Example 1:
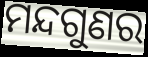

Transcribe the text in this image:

ମନ୍ଦଗୁଣର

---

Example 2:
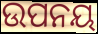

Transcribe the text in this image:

ଉପନୟ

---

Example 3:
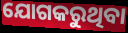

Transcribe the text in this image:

ଯୋଗକରୁଥିବା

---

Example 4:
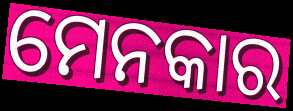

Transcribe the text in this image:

ମେନକାର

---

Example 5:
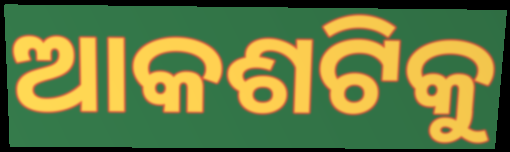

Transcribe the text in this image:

ଆକଶଟିକୁ